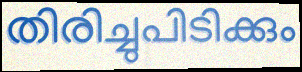
തിരിച്ചുപിടിക്കും